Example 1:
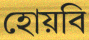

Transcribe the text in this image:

হোয়বি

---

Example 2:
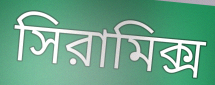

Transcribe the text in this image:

সিরামিক্স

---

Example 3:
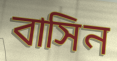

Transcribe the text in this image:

বাসিন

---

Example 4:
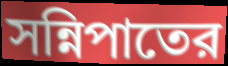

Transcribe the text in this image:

সন্নিপাতের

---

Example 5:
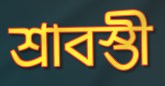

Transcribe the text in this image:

শ্রাবস্তী